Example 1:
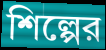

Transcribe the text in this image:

শিল্পের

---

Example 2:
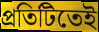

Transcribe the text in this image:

প্রতিটিতেই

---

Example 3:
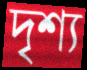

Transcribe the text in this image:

দৃশ্য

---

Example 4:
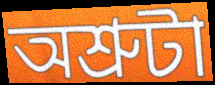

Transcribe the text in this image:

অশ্রুটা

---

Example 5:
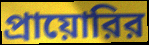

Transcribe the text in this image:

প্রায়োরির